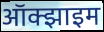
ऑक्झाइम